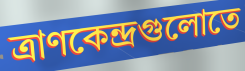
ত্রাণকেন্দ্রগুলোতে